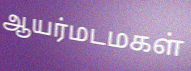
ஆயர்மடமகள்